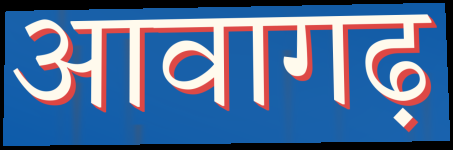
आवागढ़